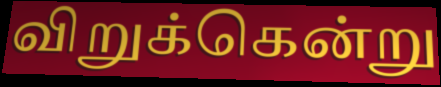
விறுக்கென்று